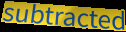
subtracted